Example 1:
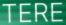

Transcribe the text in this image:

TERE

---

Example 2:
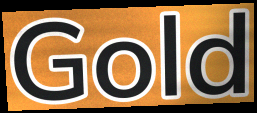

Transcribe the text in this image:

Gold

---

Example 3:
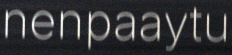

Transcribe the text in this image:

nenpaaytu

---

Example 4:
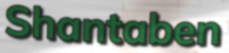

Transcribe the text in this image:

Shantaben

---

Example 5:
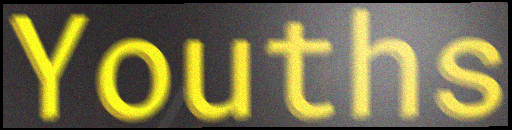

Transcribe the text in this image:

Youths